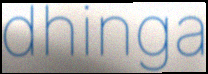
dhinga